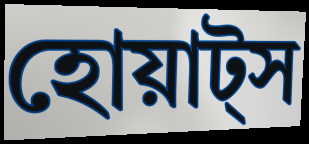
হোয়াট্স